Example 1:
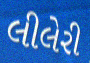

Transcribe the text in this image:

લીલેરી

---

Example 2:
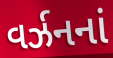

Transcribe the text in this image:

વર્ઝનનાં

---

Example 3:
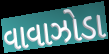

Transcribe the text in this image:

વાવાઝોડા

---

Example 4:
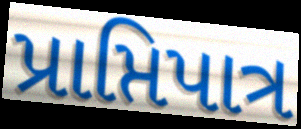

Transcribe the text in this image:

પ્રાપ્તિપાત્ર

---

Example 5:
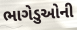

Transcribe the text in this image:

ભાગેડુઓની